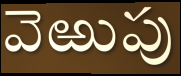
వెఱుపు